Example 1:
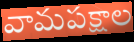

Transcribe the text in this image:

వామపక్షాల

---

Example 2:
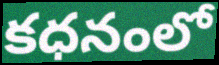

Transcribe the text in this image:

కధనంలో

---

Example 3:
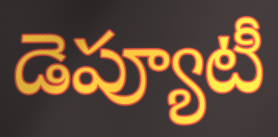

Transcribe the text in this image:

డెప్యూటీ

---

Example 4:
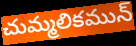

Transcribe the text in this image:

చుమ్మలికమున్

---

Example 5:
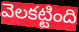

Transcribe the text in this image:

వెలకట్టింది